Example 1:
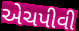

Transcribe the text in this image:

એચપીવી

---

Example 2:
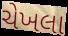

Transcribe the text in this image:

ચેખલા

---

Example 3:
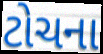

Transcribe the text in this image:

ટોચના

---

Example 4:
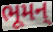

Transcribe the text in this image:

ભૂમન્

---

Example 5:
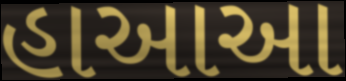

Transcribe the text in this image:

હાઆઆ